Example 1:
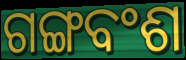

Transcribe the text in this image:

ଗଙ୍ଗବଂଶ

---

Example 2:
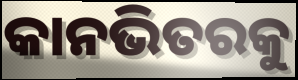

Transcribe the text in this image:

କାନଭିତରକୁ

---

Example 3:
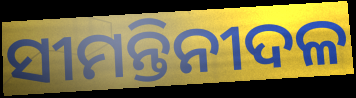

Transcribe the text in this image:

ସୀମନ୍ତିନୀଦଳ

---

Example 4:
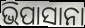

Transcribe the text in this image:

ଭିପାସାନା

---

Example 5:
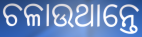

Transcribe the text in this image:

ଚଳାଉଥାନ୍ତେ